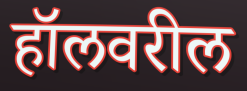
हॉलवरील